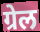
ग्रेल